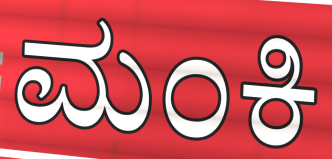
ಮಂಕಿ